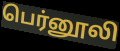
பெர்னூலி